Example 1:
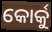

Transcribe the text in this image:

କୋର୍କୁ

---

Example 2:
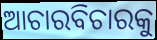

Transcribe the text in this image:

ଆଚାରବିଚାରକୁ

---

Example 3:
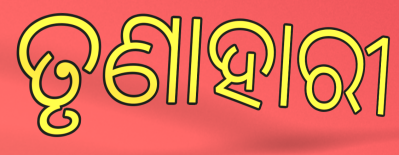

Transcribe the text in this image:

ତୃଣାହାରୀ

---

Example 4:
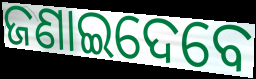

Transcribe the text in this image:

ଜଣାଇଦେବେ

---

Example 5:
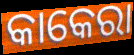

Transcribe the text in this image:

କାକେରା